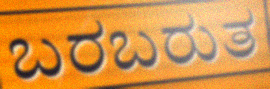
ಬರಬರುತ